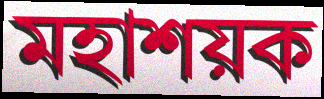
মহাশয়ক